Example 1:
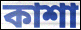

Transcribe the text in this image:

কাশা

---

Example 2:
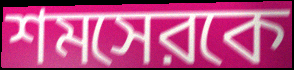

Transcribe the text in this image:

শমসেরকে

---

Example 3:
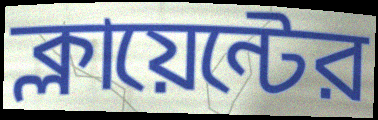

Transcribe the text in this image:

ক্লায়েন্টের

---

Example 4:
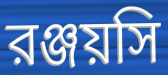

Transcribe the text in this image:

রঞ্জয়সি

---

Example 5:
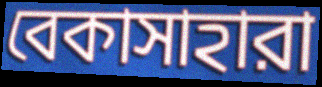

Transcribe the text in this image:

বেকাসাহারা